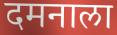
दमनाला